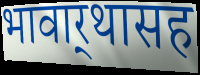
भावार्थासह